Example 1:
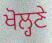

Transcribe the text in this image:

ਖੋਲ੍ਹਣੇ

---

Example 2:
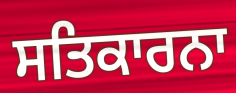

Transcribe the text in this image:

ਸਤਿਕਾਰਨਾ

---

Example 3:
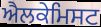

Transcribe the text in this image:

ਐਲਕੇਮਿਸਟ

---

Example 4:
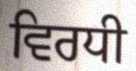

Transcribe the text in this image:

ਵਿਰਧੀ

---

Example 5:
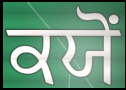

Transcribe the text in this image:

ਕਯੋਂ